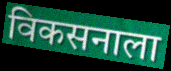
विकसनाला